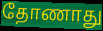
தோணாது